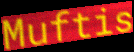
Muftis